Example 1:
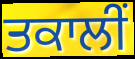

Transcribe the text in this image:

ਤਕਾਲੀਂ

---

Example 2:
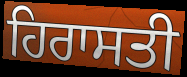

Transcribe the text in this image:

ਹਿਰਾਸਤੀ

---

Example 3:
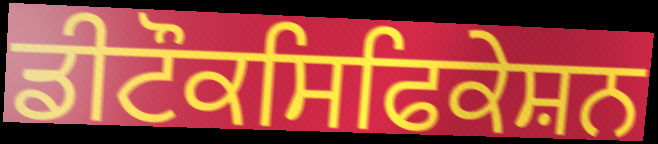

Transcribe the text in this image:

ਡੀਟੌਕਸਿਫਿਕੇਸ਼ਨ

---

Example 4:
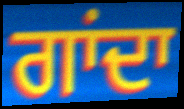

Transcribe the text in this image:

ਗਾਂਦਾ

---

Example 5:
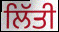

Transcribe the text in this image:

ਲਿੱਤੀ